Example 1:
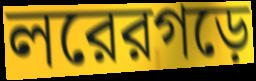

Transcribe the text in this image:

লরেরগড়ে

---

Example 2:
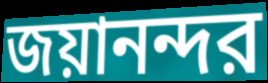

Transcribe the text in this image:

জয়ানন্দর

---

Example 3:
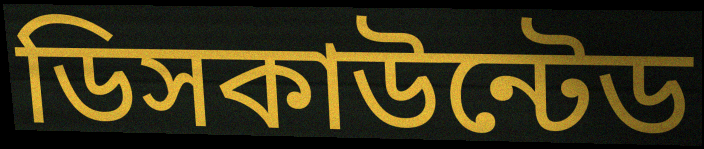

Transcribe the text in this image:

ডিসকাউন্টেড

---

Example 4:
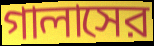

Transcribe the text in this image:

গালাসের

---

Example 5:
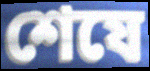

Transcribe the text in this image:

শেযে